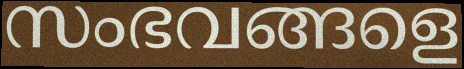
സംഭവങ്ങളെ